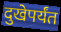
दुखेपर्यंत